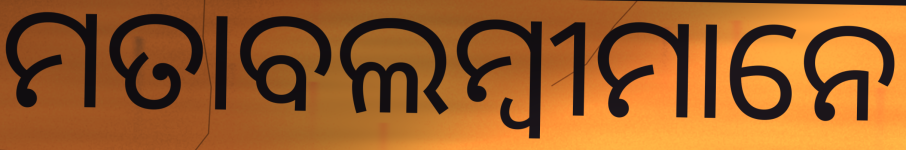
ମତାବଲମ୍ବୀମାନେ